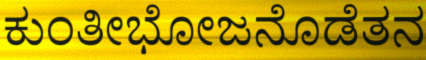
ಕುಂತೀಭೋಜನೊಡೆತನ